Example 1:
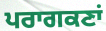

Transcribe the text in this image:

ਪਰਾਗਕਣਾਂ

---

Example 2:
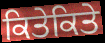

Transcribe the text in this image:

ਕਿਤੇਕਿਤੇ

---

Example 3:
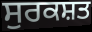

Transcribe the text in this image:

ਸੁਰਕਸ਼ਤ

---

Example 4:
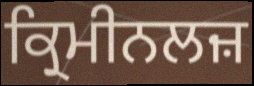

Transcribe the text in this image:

ਕ੍ਰਿਮੀਨਲਜ਼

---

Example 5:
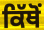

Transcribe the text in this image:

ਕਿੱਥੋੰ